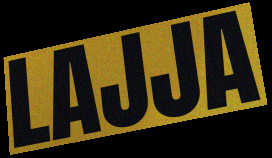
LAJJA